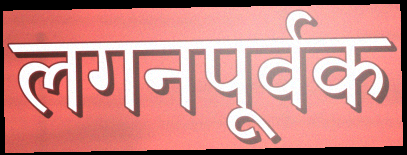
लगनपूर्वक